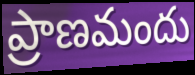
ప్రాణమందు